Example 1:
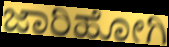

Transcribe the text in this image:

ಜಾರಿಹೋಗಿ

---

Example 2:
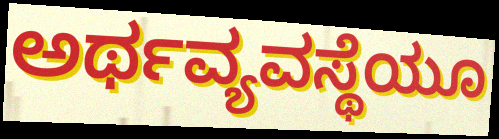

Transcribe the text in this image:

ಅರ್ಥವ್ಯವಸ್ಥೆಯೂ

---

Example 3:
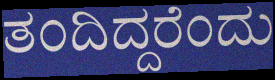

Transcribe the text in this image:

ತಂದಿದ್ದರೆಂದು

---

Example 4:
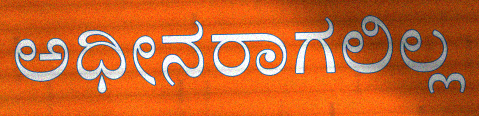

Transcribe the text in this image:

ಅಧೀನರಾಗಲಿಲ್ಲ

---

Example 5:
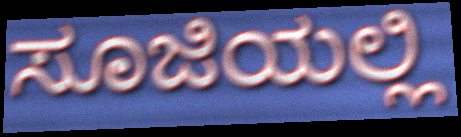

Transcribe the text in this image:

ಸೂಜಿಯಲ್ಲಿ